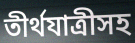
তীর্থযাত্রীসহ